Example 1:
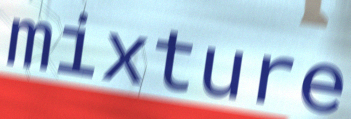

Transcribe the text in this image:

mixture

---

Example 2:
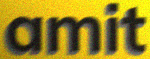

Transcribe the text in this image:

amit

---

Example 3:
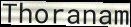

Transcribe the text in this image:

Thoranam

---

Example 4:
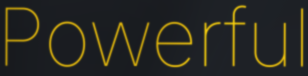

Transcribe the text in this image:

Powerful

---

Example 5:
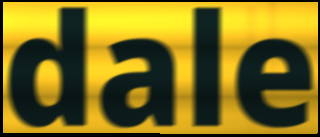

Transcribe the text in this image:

dale